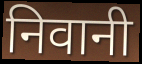
निवानी